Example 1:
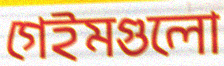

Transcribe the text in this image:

গেইমগুলো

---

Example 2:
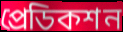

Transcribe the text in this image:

প্রেডিকশন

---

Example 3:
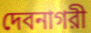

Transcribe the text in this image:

দেবনাগরী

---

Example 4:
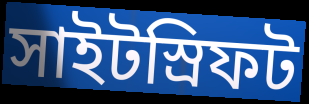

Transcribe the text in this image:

সাইটস্রিফট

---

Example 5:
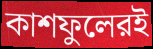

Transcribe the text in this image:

কাশফুলেরই